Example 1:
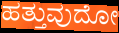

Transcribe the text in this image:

ಹತ್ತುವುದೋ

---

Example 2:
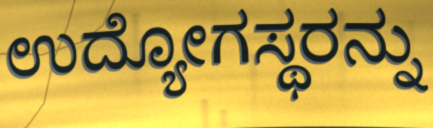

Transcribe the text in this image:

ಉದ್ಯೋಗಸ್ಥರನ್ನು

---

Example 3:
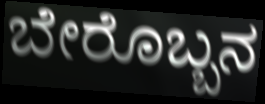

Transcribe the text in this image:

ಬೇರೊಬ್ಬನ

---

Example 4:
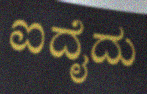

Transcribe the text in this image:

ಐದೈದು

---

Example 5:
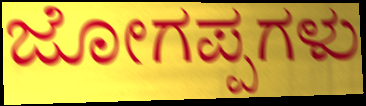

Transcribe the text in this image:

ಜೋಗಪ್ಪಗಳು